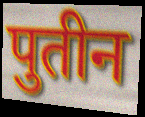
पुतीन